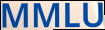
MMLU